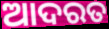
ଆଦରତ